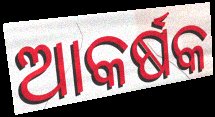
ଆକର୍ଷକ